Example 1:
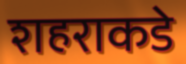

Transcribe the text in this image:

शहराकडे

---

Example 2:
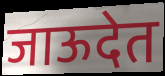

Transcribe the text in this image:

जाऊदेत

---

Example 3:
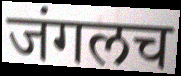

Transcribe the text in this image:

जंगलच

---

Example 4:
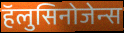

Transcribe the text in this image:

हॅलुसिनोजेन्स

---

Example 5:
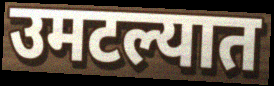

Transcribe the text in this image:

उमटल्यात